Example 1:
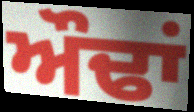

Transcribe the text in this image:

ਔਢਾਂ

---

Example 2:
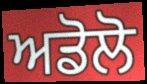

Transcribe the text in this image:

ਅਡੋਲੋ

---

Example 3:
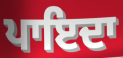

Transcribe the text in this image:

ਪਾਇਦਾ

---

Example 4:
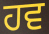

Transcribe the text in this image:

ਹਵ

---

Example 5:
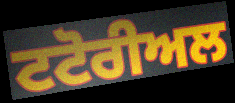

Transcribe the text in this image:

ਟਟੋਰੀਅਲ